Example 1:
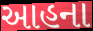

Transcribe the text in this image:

આહના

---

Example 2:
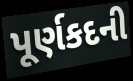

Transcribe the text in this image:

પૂર્ણકદની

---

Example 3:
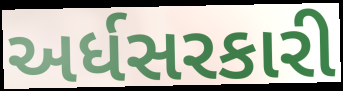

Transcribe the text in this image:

અર્ધસરકારી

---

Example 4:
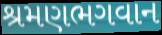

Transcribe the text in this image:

શ્રમણભગવાન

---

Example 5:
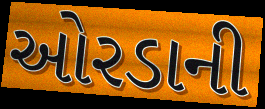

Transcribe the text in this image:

ઓરડાની